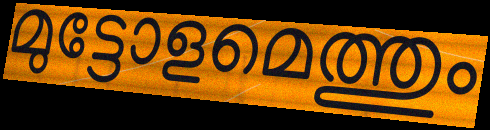
മുട്ടോളമെത്തും